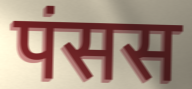
पंसस